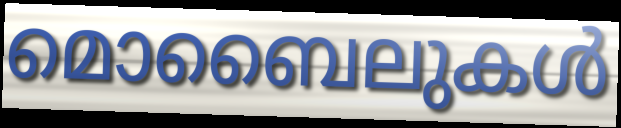
മൊബൈലുകൾ